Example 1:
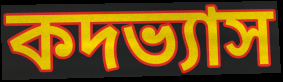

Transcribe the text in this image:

কদভ্যাস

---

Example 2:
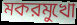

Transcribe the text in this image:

মকরমুখো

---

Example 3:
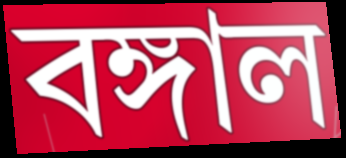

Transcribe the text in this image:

বঙ্গাল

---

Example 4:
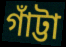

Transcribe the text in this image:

গাঁট্টা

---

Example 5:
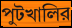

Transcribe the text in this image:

পুটখালির